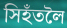
সিহঁতলৈ